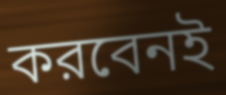
করবেনই